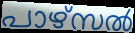
പാഴ്സൽ